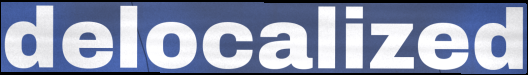
delocalized